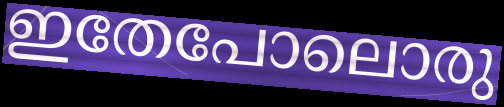
ഇതേപോലൊരു